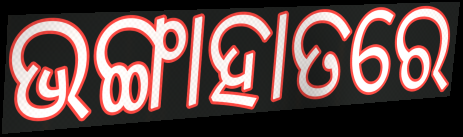
ଭଙ୍ଗାହାତରେ